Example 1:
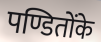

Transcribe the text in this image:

पण्डितोंके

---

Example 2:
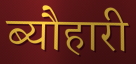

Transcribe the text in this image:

ब्यौहारी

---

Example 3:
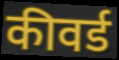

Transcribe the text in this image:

कीवर्ड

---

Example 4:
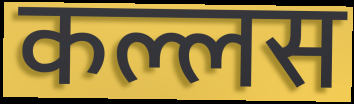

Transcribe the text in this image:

कल्लस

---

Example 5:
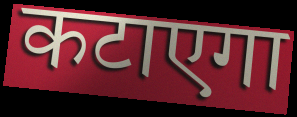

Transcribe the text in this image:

कटाएगा